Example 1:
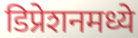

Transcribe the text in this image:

डिप्रेशनमध्ये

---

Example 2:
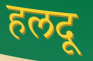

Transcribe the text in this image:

हलदू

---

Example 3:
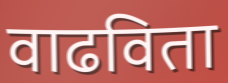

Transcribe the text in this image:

वाढविता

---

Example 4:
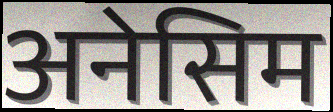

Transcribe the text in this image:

अनेसिम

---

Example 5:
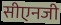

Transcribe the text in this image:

सीएनजी